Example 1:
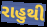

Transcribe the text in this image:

રાહુથી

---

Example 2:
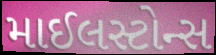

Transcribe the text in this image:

માઈલસ્ટોન્સ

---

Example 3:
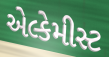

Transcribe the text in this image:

એલ્કેમીસ્ટ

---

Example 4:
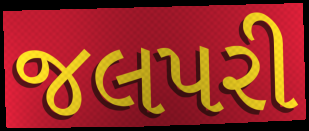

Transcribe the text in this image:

જલપરી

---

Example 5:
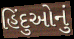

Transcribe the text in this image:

હિંદુઓનું